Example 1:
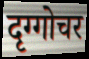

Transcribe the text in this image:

दृग्गोचर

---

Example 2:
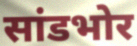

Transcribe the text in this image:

सांडभोर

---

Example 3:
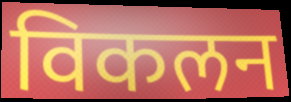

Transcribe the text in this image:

विकलन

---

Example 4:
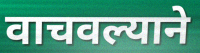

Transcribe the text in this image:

वाचवल्याने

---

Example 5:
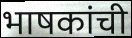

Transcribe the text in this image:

भाषकांची